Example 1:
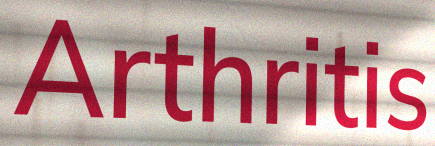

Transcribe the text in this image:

Arthritis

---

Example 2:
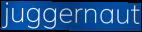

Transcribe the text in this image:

juggernaut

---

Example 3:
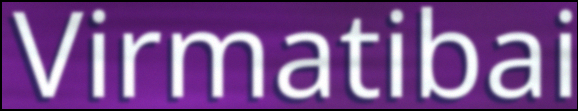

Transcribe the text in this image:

Virmatibai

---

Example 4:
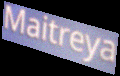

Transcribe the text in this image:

Maitreya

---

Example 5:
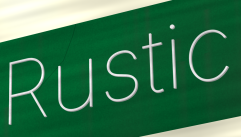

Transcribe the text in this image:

Rustic